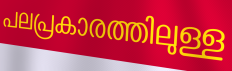
പലപ്രകാരത്തിലുള്ള